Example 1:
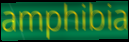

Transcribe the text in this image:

amphibia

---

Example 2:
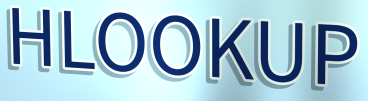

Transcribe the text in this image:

HLOOKUP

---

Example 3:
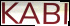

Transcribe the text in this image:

KABI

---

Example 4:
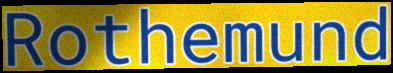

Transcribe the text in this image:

Rothemund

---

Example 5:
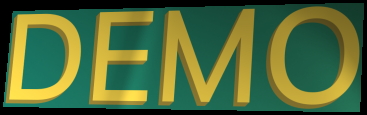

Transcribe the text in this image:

DEMO